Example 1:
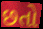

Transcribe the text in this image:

છતો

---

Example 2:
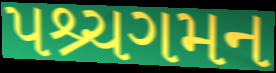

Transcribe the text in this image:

પશ્ર્ચગમન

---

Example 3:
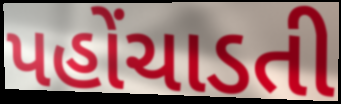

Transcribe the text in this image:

પહોંચાડતી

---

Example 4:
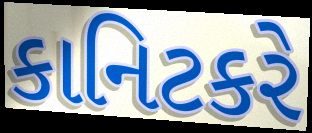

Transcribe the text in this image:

કાનિટકરે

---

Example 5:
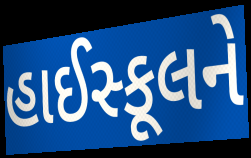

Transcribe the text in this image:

હાઈસ્કૂલને